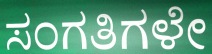
ಸಂಗತಿಗಳೇ